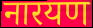
नारयण